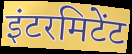
इंटरमिटेंट